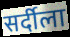
सर्दीला